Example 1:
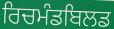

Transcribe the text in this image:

ਰਿਚਮੰਡਬਿਲਡ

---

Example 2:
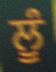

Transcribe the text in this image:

ਲੂੰ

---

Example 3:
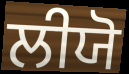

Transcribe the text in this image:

ਲੀਯੋ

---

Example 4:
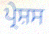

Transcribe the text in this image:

ਪ੍ਰੇਸ਼ਸ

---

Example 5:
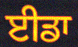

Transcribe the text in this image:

ਈਡਾ